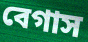
বেগাস